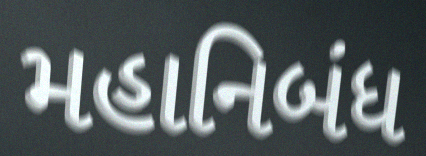
મહાનિબંધ